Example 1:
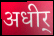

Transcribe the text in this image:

अधीर्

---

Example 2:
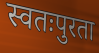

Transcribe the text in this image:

स्वतःपुरता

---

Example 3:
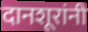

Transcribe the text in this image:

दानशूरांनी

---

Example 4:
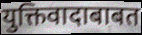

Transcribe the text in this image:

युक्तिवादाबाबत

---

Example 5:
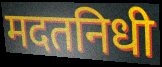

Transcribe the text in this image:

मदतनिधी